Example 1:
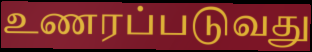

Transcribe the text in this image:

உணரப்படுவது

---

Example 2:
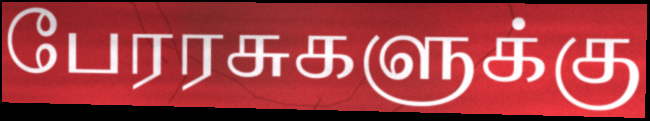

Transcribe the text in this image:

பேரரசுகளுக்கு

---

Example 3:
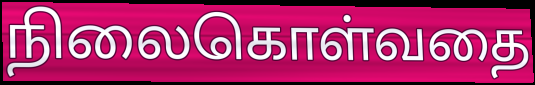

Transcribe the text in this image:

நிலைகொள்வதை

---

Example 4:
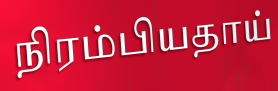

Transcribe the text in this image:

நிரம்பியதாய்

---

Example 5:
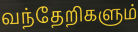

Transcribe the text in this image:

வந்தேறிகளும்